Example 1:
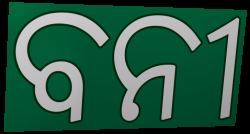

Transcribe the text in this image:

ବନୀ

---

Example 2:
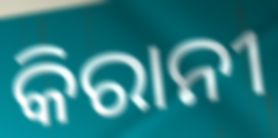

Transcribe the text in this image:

କିରାନୀ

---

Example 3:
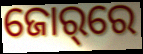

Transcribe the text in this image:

ଜୋର୍‌ରେ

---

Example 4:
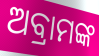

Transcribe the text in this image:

ଅବ୍ରାମଙ୍କ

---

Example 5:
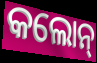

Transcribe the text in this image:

କଲୋନ୍